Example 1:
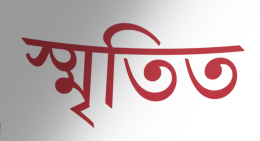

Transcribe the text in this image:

স্মৃতিত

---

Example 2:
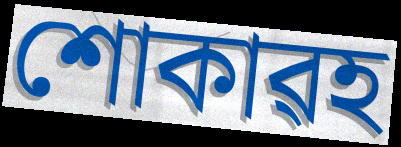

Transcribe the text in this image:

শোকাৱহ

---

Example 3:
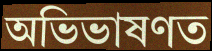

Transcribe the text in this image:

অভিভাষণত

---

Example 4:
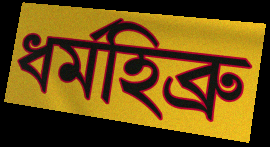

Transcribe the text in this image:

ধৰ্মহিব্ৰু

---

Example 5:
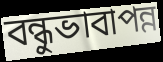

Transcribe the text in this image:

বন্ধুভাবাপন্ন